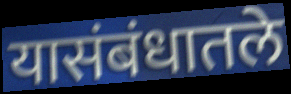
यासंबंधातले